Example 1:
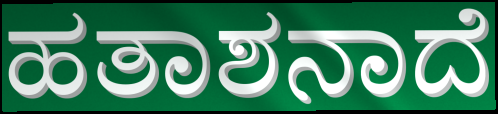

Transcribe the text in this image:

ಹತಾಶನಾದೆ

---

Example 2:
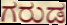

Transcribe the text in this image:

ಗರುಡ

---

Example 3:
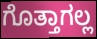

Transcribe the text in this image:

ಗೊತ್ತಾಗಲ್ಲ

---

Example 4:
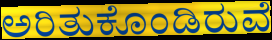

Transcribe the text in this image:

ಅರಿತುಕೊಂಡಿರುವೆ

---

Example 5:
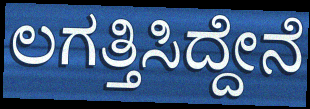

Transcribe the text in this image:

ಲಗತ್ತಿಸಿದ್ದೇನೆ